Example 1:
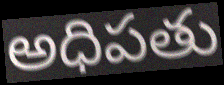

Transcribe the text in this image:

అధిపతు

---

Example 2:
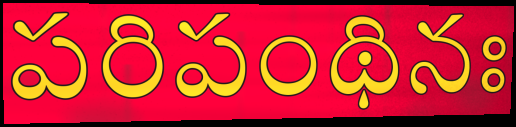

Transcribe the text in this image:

పరిపంథినః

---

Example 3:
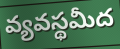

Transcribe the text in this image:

వ్యవస్థమీద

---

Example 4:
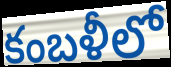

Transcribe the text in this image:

కంబళీలో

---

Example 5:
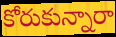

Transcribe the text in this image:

కోరుకున్నారా